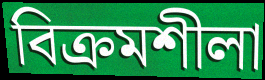
বিক্রমশীলা